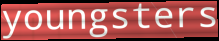
youngsters